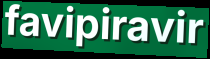
favipiravir